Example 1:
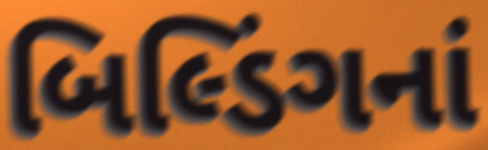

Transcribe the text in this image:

બિલ્ડિંગનાં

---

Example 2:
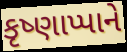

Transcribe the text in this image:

કૃષ્ણાપ્પાને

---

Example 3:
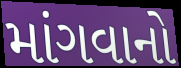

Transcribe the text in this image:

માંગવાનો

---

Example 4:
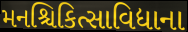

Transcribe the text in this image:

મનશ્ચિકિત્સાવિદ્યાના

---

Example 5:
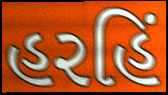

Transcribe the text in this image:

હરહિં